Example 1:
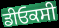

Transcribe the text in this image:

ਡੀਓਕਸੀ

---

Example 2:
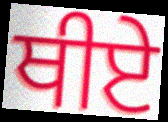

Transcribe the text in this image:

ਥੀਏ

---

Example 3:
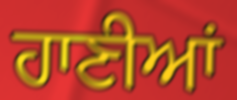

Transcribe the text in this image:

ਹਾਣੀਆਂ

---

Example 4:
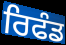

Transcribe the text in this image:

ਰਿਫੰਡ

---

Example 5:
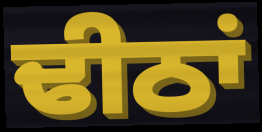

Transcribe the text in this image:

ਢੀਠਾਂ